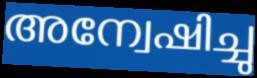
അന്വേഷിച്ചു